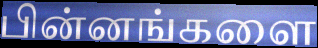
பின்னங்களை